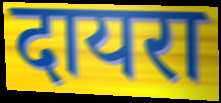
दायरा